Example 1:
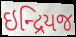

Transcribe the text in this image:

ઇન્દ્રિયજ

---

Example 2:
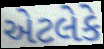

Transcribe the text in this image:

એટલેકે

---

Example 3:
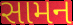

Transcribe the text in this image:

સામન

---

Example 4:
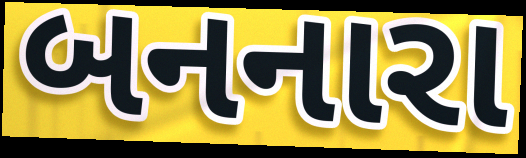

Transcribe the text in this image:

બનનારા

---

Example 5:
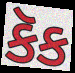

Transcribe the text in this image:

કૅક